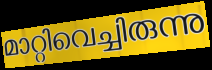
മാറ്റിവെച്ചിരുന്നു